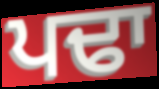
ਪਢਾ